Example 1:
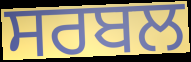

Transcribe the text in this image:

ਸਰਬਲ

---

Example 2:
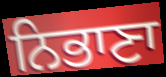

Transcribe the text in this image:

ਨਿਭਾਣਾ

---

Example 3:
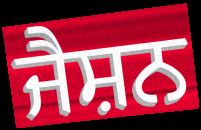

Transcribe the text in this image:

ਜੈਸ਼ਨ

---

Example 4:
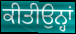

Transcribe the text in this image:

ਕੀਤੀਉਨ੍ਹਾਂ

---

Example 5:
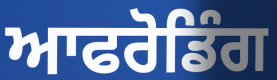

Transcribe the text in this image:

ਆਫਰੋਡਿੰਗ